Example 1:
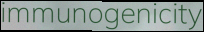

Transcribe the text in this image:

immunogenicity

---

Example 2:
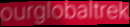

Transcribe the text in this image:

ourglobaltrek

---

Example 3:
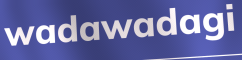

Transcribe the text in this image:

wadawadagi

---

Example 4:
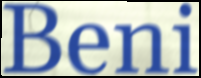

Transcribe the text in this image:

Beni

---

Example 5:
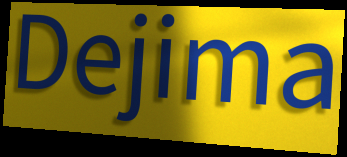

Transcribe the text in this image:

Dejima